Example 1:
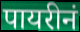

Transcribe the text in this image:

पायरीनं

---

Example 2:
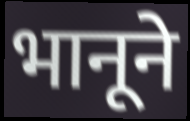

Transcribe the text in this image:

भानूने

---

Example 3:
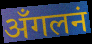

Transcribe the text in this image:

अँगलनं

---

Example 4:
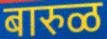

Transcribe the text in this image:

बारुळ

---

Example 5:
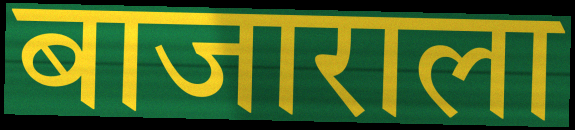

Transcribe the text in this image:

बाजाराला